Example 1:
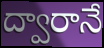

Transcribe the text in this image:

ద్వారానే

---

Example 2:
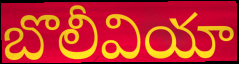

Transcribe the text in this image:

బొలీవియా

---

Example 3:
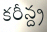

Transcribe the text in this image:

కరీన్ద్ర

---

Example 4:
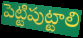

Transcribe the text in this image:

పెట్టిపుట్టాలి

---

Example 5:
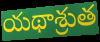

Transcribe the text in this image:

యథాశ్రుత